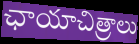
ఛాయాచిత్రాలు